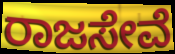
ರಾಜಸೇವೆ